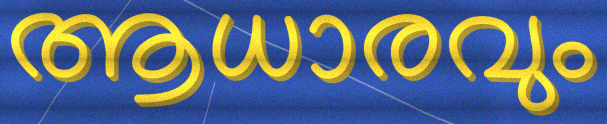
ആധാരവും